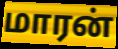
மாரன்